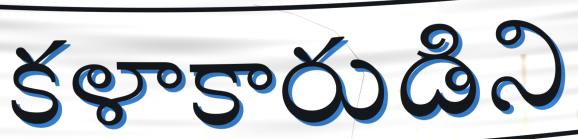
కళాకారుడిని